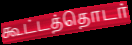
கூட்டத்தொடர்